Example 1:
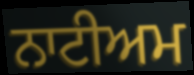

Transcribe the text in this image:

ਨਾਟੀਅਮ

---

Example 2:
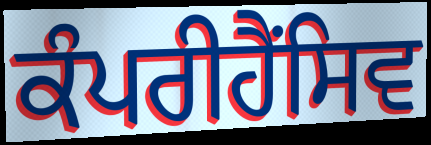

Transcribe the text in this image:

ਕੰਪਰੀਹੈਂਸਿਵ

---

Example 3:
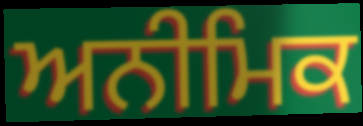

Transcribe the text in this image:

ਅਨੀਮਿਕ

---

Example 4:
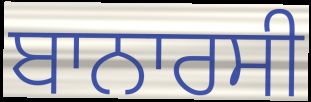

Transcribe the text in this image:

ਬਾਨਾਰਸੀ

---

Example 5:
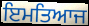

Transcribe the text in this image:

ਇਮਤਿਆਜ